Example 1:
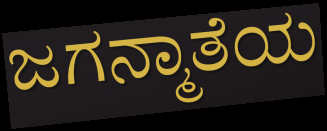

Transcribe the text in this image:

ಜಗನ್ಮಾತೆಯ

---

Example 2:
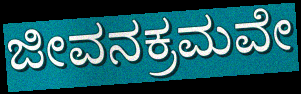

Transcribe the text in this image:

ಜೀವನಕ್ರಮವೇ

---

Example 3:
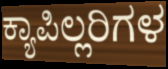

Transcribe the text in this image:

ಕ್ಯಾಪಿಲ್ಲರಿಗಳ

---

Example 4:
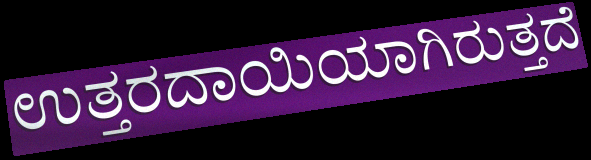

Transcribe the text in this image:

ಉತ್ತರದಾಯಿಯಾಗಿರುತ್ತದೆ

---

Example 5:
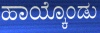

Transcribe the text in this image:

ಹಾಯ್ಕೊಂಡು